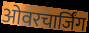
ओवरचार्जिंग